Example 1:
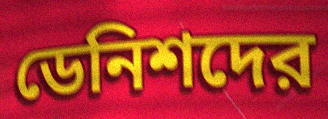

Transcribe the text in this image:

ডেনিশদের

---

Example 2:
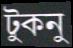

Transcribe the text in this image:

টুকনু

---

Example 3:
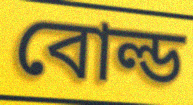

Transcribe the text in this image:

বোল্ড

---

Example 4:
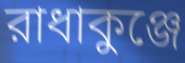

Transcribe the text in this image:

রাধাকুঞ্জে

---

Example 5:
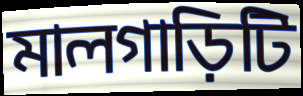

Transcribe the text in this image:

মালগাড়িটি